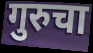
गुरुचा